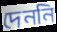
দেননি